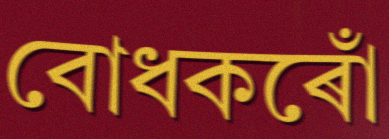
বোধকৰোঁ